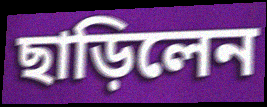
ছাড়িলেন